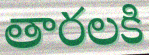
తారలకి